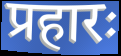
प्रहारः